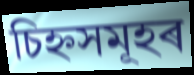
চিহ্নসমূহৰ